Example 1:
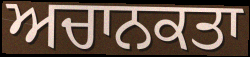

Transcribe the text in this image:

ਅਚਾਨਕਤਾ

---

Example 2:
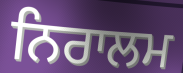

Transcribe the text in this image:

ਨਿਰਾਲਮ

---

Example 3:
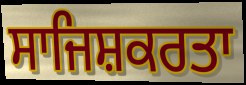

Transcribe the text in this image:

ਸਾਜਿਸ਼ਕਰਤਾ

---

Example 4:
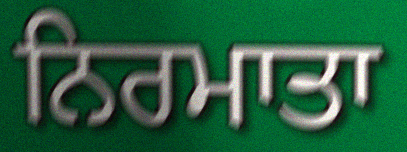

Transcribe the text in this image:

ਨਿਰਮਾਤਾ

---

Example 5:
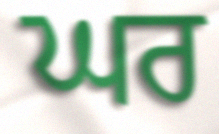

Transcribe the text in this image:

ਘਰ